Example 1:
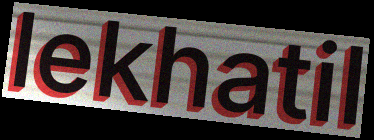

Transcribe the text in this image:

lekhatil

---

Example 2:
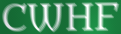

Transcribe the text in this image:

CWHF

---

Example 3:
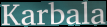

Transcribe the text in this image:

Karbala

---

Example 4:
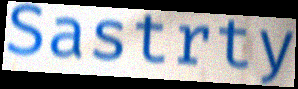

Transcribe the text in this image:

Sastrty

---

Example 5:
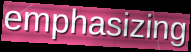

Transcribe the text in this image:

emphasizing